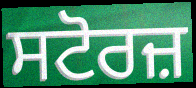
ਸਟੋਰਜ਼